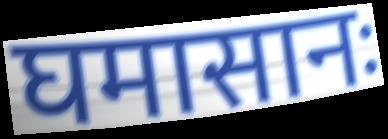
घमासानः